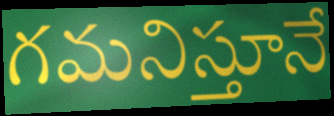
గమనిస్తూనే